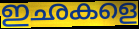
ഇഛകളെ